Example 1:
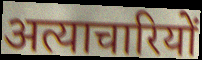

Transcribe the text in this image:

अत्याचारियों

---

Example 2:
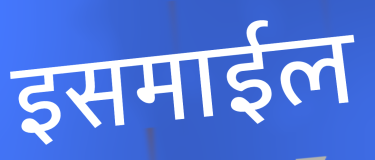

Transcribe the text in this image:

इसमाईल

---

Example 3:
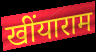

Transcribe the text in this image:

खींयाराम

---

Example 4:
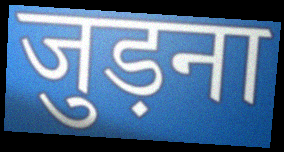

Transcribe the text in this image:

जुड़ना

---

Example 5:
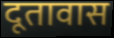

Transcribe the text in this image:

दूतावास